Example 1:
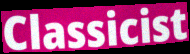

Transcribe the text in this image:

Classicist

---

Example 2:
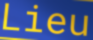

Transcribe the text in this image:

Lieu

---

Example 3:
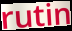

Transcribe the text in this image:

rutin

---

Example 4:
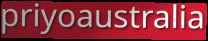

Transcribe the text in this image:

priyoaustralia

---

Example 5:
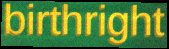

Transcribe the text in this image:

birthright